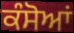
ਕੰਸੋਆਂ